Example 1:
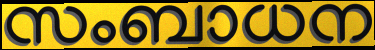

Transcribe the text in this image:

സംബാധന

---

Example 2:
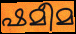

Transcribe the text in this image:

ഷമീമ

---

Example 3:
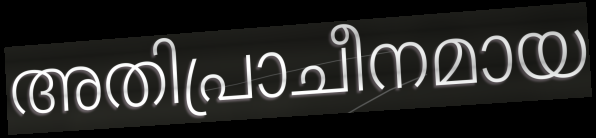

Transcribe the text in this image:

അതിപ്രാചീനമായ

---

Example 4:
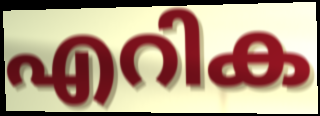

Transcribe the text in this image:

എറിക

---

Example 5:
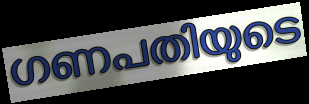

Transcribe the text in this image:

ഗണപതിയുടെ